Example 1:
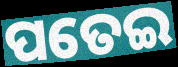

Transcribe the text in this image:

ପତେଇ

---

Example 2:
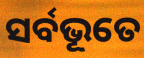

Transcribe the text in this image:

ସର୍ବଭୂତେ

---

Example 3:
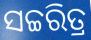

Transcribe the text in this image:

ସଚ୍ଚରିତ୍ର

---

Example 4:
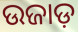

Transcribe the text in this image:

ଉଜାଡ଼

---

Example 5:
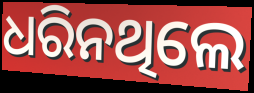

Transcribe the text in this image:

ଧରିନଥିଲେ